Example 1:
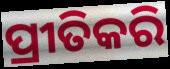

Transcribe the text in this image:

ପ୍ରୀତିକରି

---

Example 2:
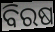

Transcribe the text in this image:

ବିରଷ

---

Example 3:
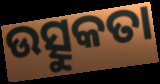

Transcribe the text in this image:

ଉତ୍ସୁକତା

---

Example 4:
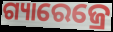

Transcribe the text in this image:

ଗ୍ୟାରେଜ୍ରେ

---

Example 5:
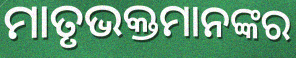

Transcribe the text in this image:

ମାତୃଭକ୍ତମାନଙ୍କର